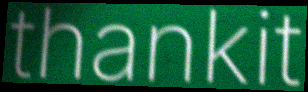
thankit